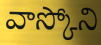
వాస్కోని